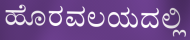
ಹೊರವಲಯದಲ್ಲಿ